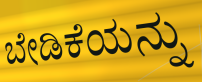
ಬೇಡಿಕೆಯನ್ನು